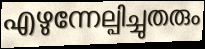
എഴുന്നേല്പിച്ചുതരും